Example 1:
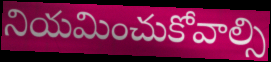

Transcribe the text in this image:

నియమించుకోవాల్సి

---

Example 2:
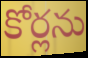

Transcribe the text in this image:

కోర్లను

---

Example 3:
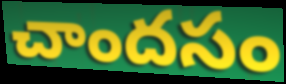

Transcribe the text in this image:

చాందసం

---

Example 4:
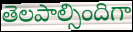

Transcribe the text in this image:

తెలపాల్సిందిగా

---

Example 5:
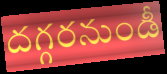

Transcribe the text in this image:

దగ్గరనుండీ